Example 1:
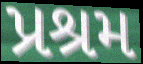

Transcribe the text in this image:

પ્રશ્રમ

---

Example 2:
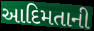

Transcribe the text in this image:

આદિમતાની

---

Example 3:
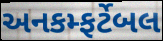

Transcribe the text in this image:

અનકમ્ફર્ટેબલ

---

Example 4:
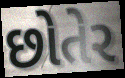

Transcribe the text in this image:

છોતેર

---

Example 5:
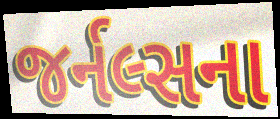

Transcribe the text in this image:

જર્નલ્સના